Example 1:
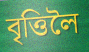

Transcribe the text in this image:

বৃত্তিলৈ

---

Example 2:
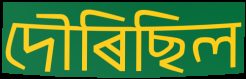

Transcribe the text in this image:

দৌৰিছিল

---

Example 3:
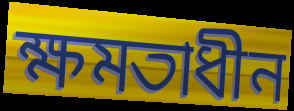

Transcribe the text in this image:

ক্ষমতাধীন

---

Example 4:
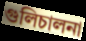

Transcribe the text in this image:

গুলিচালনা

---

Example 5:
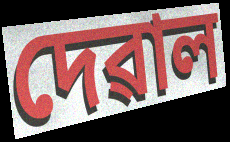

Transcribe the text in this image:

দেৱাল